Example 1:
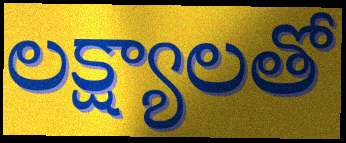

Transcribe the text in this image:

లక్ష్యాలతో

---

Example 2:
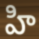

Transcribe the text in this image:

హి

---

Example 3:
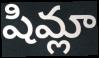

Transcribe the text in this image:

షిమ్లా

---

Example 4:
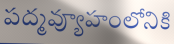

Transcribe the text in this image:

పద్మవ్యూహంలోనికి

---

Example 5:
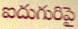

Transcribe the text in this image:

ఐదుగురిపై